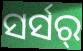
ସର୍ସର୍